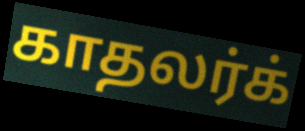
காதலர்க்